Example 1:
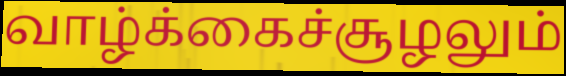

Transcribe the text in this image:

வாழ்க்கைச்சூழலும்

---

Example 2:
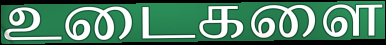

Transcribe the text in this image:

உடைகளை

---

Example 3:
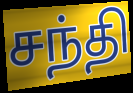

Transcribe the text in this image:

சந்தி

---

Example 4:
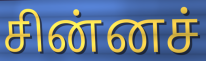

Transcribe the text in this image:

சின்னச்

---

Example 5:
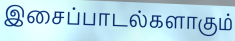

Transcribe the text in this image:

இசைப்பாடல்களாகும்